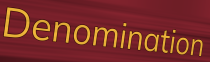
Denomination